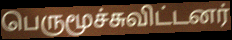
பெருமூச்சுவிட்டனர்